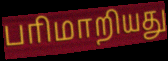
பரிமாறியது